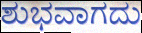
ಶುಭವಾಗದು